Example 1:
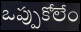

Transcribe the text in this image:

ఒప్పుకోలేం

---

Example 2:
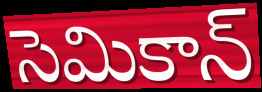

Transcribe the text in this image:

సెమికాన్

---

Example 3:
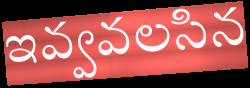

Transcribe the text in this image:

ఇవ్వవలసిన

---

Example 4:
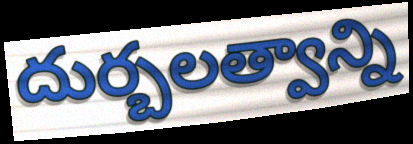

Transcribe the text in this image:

దుర్బలత్వాన్ని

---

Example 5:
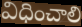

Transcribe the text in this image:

విధించాలి